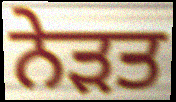
ਨੇੜਤ